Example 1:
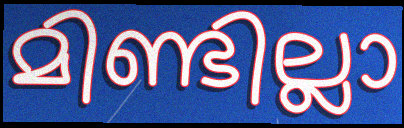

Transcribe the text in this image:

മിണ്ടില്ലാ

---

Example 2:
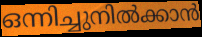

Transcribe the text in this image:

ഒന്നിച്ചുനിൽക്കാൻ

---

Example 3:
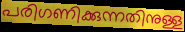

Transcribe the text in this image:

പരിഗണിക്കുന്നതിനുള്ള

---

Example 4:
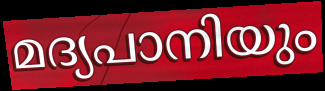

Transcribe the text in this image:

മദ്യപാനിയും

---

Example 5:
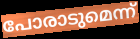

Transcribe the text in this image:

പോരാടുമെന്ന്